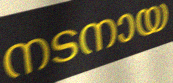
നടനായ